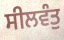
ਸੀਲਵੰਤੁ